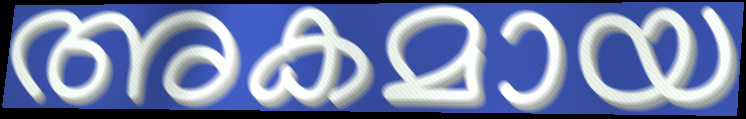
അകമായ